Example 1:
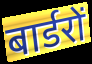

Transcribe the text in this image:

बार्डरों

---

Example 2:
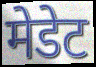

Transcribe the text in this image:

मेडेट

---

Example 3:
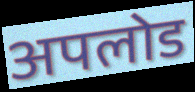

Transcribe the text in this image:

अपलोड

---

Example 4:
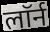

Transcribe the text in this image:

लॉर्न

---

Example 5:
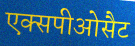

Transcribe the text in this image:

एक्सपीओसैट